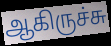
ஆகிருச்சு